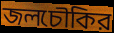
জলচৌকির